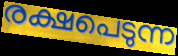
രക്ഷപെടുന്ന